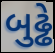
બુઢ્ઢે